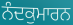
ਨੰਦਕੁਮਾਰਨ